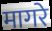
मागरे